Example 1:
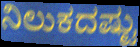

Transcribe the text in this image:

ನಿಲುಕದಷ್ಟು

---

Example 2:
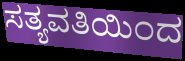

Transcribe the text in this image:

ಸತ್ಯವತಿಯಿಂದ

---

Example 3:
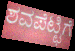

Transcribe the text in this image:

ಶವಪೆಟ್ಟಿಗೆ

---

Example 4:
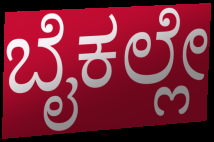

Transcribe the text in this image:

ಬೈಕಲ್ಲೇ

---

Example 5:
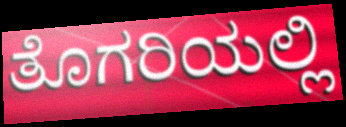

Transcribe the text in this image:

ತೊಗರಿಯಲ್ಲಿ